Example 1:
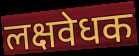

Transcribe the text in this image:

लक्षवेधक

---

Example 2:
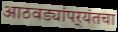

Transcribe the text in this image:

आठवड्यांपर्यंतचा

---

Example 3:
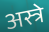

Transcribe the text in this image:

अस्त्रे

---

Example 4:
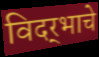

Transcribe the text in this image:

विदर्भाचे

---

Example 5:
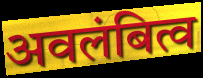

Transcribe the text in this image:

अवलंबित्व